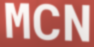
MCN